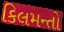
કિલમન્તો